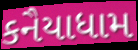
કનૈયાધામ